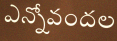
ఎన్నోవందల